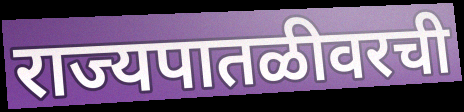
राज्यपातळीवरची